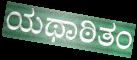
ಯಥಾಠಿತಂ